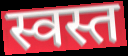
स्वस्त